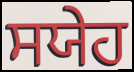
ਸਯੇਹ